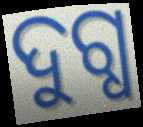
ଦୁଗ୍ଧ